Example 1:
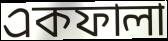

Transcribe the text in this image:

একফালা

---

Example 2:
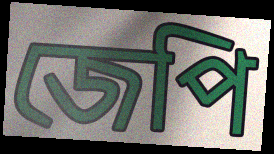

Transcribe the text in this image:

জেপি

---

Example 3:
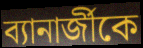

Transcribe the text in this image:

ব্যানার্জীকে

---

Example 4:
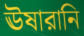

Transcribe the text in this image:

ঊষারানি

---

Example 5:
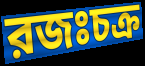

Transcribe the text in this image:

রজঃচক্র